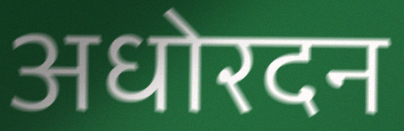
अधोरदन